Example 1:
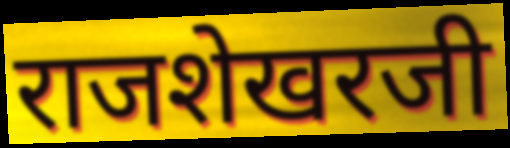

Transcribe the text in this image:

राजशेखरजी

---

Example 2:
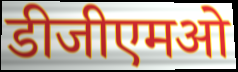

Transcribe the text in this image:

डीजीएमओ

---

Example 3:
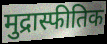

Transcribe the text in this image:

मुद्रास्फीतिक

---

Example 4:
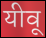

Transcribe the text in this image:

यीवू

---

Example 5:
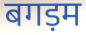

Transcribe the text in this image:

बगड़म